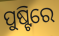
ପୁଷ୍ଟିରେ